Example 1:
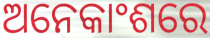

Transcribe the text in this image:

ଅନେକାଂଶରେ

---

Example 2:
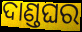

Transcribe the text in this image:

ଦାଣ୍ଡଘର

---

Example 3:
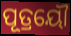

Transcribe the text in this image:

ପୂତ୍ରୟୌ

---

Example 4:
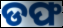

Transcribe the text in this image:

ଡଫ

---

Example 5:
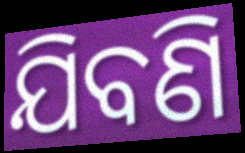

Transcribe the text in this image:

ଯିବଣି